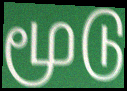
மூடு